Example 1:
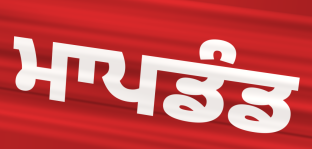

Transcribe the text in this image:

ਮਾਪਡੰਡ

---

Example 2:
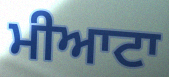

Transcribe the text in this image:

ਮੀਆਟਾ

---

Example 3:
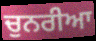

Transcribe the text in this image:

ਚੁਨਰੀਆ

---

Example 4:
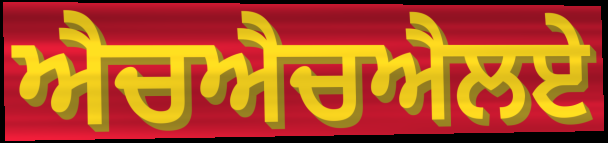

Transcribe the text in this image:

ਐਚਐਚਐਲਏ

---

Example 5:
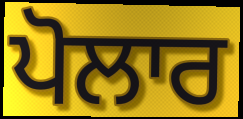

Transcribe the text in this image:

ਪੋਲਾਰ